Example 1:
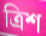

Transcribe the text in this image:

ত্ৰিশ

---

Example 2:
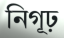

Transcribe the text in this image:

নিগূঢ়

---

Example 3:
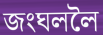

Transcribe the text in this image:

জংঘললৈ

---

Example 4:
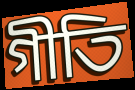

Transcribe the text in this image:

গীতি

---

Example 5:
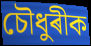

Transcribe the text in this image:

চৌধুৰীক